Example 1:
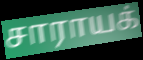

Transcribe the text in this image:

சாராயக்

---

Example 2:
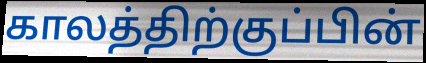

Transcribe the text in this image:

காலத்திற்குப்பின்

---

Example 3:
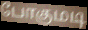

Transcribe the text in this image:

போகுமடி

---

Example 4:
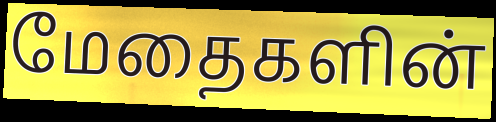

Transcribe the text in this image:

மேதைகளின்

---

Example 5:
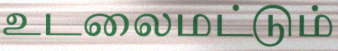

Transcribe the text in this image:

உடலைமட்டும்